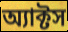
অ্যাক্টস